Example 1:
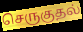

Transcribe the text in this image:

செருகுதல்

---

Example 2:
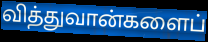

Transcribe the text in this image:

வித்துவான்களைப்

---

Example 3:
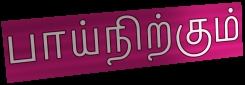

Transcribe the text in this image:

பாய்நிற்கும்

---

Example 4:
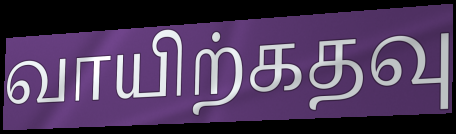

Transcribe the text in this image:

வாயிற்கதவு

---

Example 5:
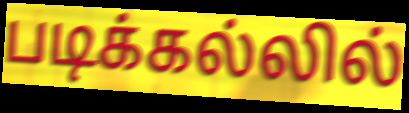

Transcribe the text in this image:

படிக்கல்லில்